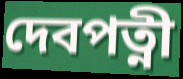
দেবপত্নী